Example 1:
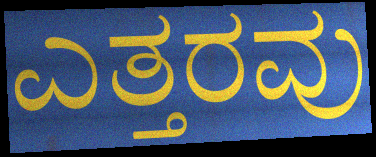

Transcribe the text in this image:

ಎತ್ತರವು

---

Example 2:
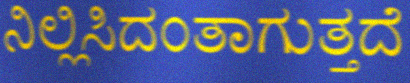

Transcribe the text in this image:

ನಿಲ್ಲಿಸಿದಂತಾಗುತ್ತದೆ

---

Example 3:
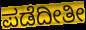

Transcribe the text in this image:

ಪಡೆದೀತೀ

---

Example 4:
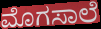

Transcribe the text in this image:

ಮೊಗಸಾಲೆ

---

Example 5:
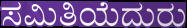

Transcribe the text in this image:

ಸಮಿತಿಯೆದುರು